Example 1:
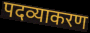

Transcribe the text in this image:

पदव्याकरण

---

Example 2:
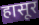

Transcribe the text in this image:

हासूर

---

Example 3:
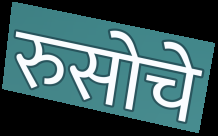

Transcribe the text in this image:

रुसोचे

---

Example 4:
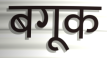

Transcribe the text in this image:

बगूक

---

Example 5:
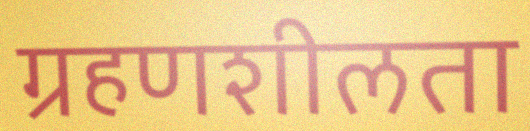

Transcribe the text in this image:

ग्रहणशीलता